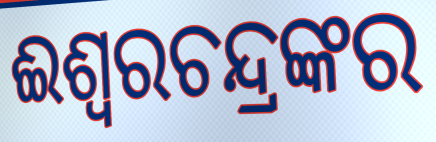
ଈଶ୍ଵରଚନ୍ଦ୍ରଙ୍କର